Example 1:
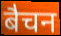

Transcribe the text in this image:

बैचन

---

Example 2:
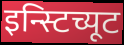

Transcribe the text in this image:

इन्स्टिच्यूट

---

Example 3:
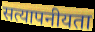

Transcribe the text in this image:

सत्यापनीयता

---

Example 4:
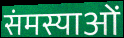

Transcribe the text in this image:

संमस्याओं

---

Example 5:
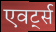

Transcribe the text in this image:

एवर्ट्स